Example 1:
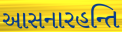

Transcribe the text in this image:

આસનારહન્તિ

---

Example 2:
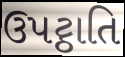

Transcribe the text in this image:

ઉપટ્ઠાતિ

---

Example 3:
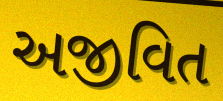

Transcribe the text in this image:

અજીવિત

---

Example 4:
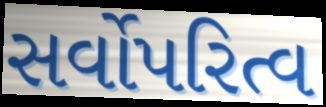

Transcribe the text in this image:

સર્વોપરિત્વ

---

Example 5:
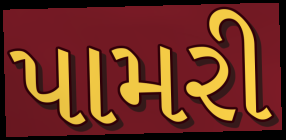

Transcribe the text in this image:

પામરી